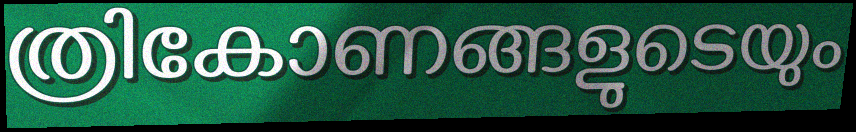
ത്രികോണങ്ങളുടെയും